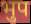
भुप